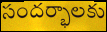
సందర్భాలకు